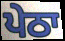
ਪੇਠਾ